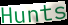
Hunts